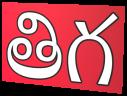
తిగ